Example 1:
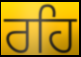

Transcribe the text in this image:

ਰਹਿ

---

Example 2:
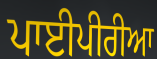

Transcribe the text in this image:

ਪਾਈਪੀਰੀਆ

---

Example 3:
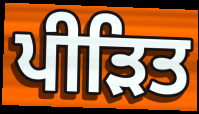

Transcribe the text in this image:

ਪੀੜਿਤ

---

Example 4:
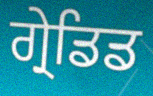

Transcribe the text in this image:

ਗ੍ਰੇਡਿਡ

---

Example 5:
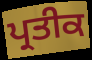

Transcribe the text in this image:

ਪ੍ਰਤੀਕ